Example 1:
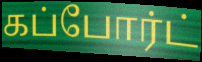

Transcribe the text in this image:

கப்போர்ட்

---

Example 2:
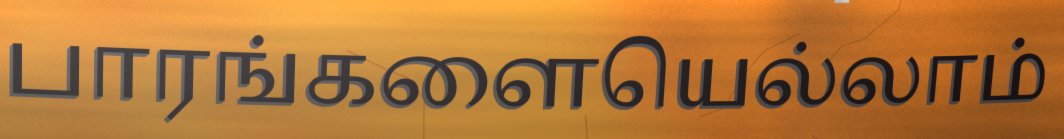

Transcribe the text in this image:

பாரங்களையெல்லாம்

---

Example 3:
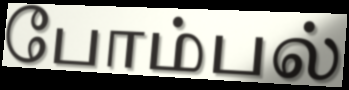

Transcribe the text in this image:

போம்பல்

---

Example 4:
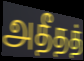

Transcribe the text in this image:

அதீதத்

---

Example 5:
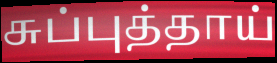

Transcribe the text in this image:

சுப்புத்தாய்